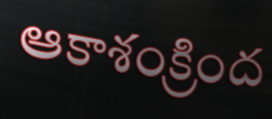
ఆకాశంక్రింద